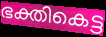
ഭക്തികെട്ട